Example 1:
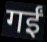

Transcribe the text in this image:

गईं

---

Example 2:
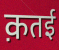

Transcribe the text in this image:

क़तई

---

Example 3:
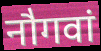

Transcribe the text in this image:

नौगवां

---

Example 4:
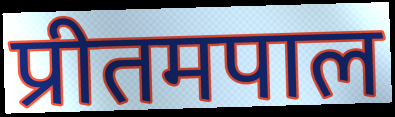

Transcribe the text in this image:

प्रीतमपाल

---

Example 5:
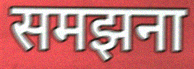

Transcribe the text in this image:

समझना